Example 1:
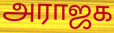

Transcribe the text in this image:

அராஜக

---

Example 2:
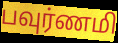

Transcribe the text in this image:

பவுர்ணமி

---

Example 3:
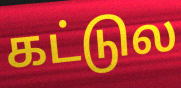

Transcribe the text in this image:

கட்டுல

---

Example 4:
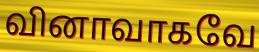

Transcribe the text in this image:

வினாவாகவே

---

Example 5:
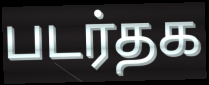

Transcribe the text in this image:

படர்தக